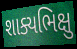
શાક્યભિક્ષુ